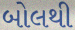
બોલથી